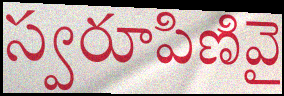
స్వరూపిణివై